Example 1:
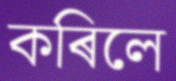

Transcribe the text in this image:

কৰিলে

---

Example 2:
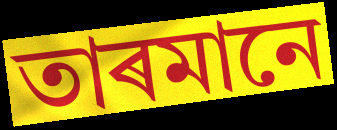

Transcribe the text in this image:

তাৰমানে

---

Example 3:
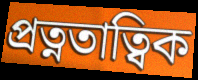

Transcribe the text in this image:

প্ৰত্নতাত্বিক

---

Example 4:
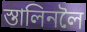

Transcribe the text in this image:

স্তালিনলৈ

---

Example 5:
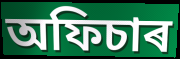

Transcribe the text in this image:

অফিচাৰ